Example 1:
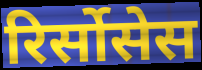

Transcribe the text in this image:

रिर्सोसेस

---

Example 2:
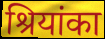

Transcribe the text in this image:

श्रियांका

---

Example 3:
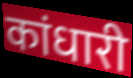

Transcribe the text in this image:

कांधारी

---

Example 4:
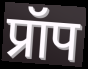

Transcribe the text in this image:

प्रॉप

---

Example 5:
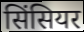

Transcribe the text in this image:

सिंसियर